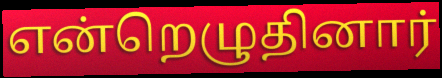
என்றெழுதினார்